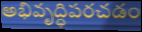
అభివృద్ధిపరచడం